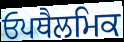
ਓਪਥੈਲਮਿਕ